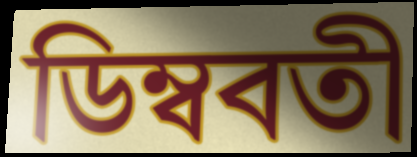
ডিম্ববতী